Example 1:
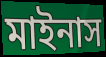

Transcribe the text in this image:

মাইনাস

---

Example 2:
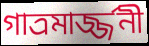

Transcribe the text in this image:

গাত্রমার্জ্জনী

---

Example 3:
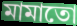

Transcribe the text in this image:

মামাতো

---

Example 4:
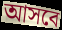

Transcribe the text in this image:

আসবে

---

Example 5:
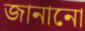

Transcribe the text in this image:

জানানো